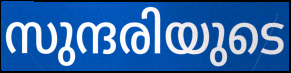
സുന്ദരിയുടെ